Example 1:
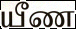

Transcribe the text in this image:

யீண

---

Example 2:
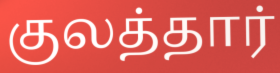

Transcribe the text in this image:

குலத்தார்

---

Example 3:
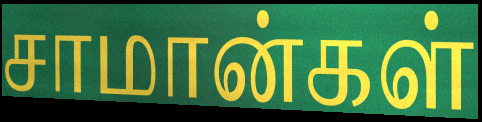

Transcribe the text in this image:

சாமான்கள்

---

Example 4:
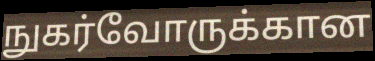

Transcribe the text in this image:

நுகர்வோருக்கான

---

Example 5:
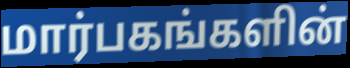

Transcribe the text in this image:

மார்பகங்களின்